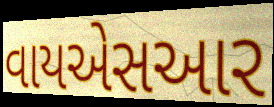
વાયએસઆર